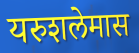
यरुशलेमास